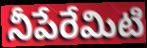
నీపేరేమిటి